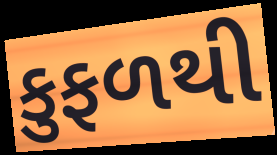
કુફળથી